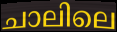
ചാലിലെ